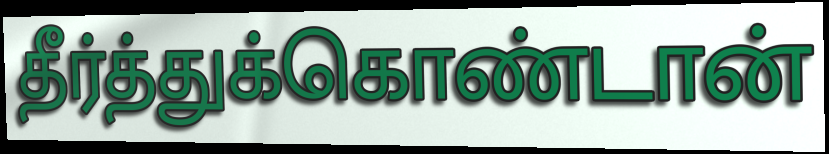
தீர்த்துக்கொண்டான்